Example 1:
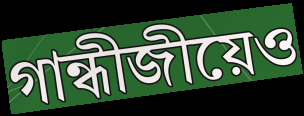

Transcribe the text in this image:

গান্ধীজীয়েও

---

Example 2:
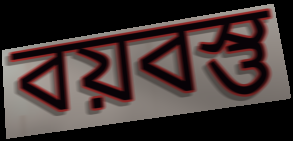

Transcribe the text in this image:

বয়বস্তু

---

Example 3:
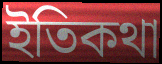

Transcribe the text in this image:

ইতিকথা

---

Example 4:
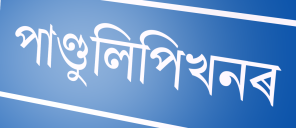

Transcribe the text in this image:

পাণ্ডুলিপিখনৰ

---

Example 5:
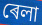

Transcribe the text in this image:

ৰেলা